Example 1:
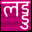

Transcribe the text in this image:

लड्डु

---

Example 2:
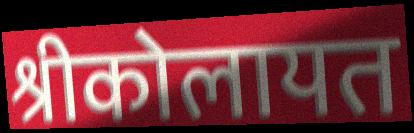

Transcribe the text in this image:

श्रीकोलायत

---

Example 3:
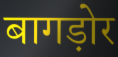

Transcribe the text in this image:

बागड़ोर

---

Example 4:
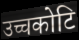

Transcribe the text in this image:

उच्चकोटि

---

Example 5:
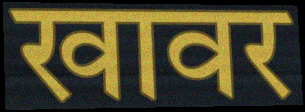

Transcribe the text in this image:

खावर